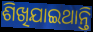
ଶିଖିଯାଇଥାନ୍ତି